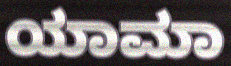
ಯಾಮಾ